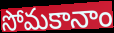
సోమకానాం